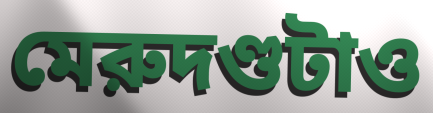
মেরুদণ্ডটাও